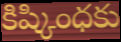
కిష్కింధకు